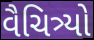
વૈચિત્ર્યો